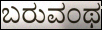
ಬರುವಂಥ